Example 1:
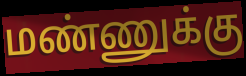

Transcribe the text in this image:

மண்ணுக்கு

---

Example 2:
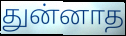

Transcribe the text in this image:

துன்னாத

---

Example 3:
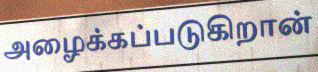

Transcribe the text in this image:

அழைக்கப்படுகிறான்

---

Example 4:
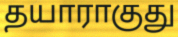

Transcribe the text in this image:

தயாராகுது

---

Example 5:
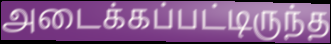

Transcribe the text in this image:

அடைக்கப்பட்டிருந்த